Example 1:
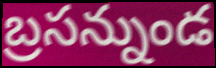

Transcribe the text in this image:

బ్రసన్నుండ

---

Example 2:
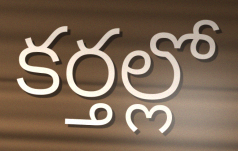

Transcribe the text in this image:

కర్తల్లో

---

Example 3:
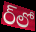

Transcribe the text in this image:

ర్‌లో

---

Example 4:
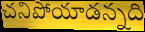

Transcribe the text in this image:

చనిపోయాడన్నది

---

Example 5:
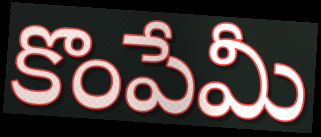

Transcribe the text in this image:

కొంపేమీ